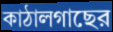
কাঠালগাছের